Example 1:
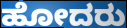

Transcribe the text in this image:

ಹೋದರು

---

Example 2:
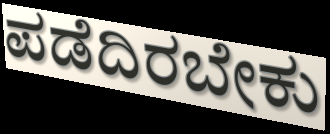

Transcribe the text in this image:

ಪಡೆದಿರಬೇಕು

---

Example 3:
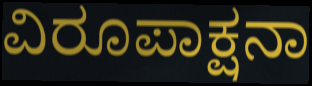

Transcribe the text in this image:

ವಿರೂಪಾಕ್ಷನಾ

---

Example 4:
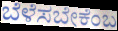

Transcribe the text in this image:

ಬೆಳೆಸಬೇಕೆಂಬ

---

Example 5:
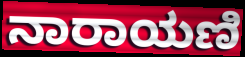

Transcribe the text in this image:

ನಾರಾಯಣಿ